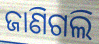
ଜାଣିଗଲି